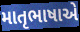
માતૃભાષાએ